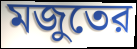
মজুতের